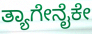
ತ್ಯಾಗೇನೈಕೇ